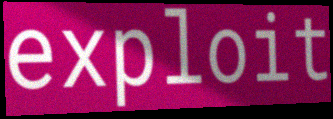
exploit